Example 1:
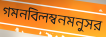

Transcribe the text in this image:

গমনবিলম্বনমনুসর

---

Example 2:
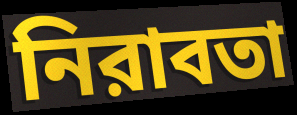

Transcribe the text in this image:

নিরাবতা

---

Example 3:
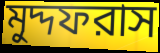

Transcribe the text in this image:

মুদ্দফরাস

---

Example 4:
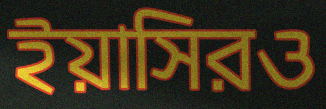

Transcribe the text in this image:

ইয়াসিরও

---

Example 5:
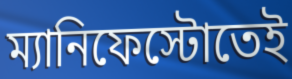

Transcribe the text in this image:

ম্যানিফেস্টোতেই